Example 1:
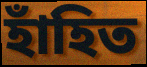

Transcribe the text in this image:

হাঁহিত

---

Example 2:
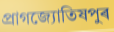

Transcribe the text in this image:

প্ৰাগজ্যোতিষপুৰ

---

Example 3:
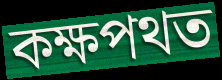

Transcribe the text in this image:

কক্ষপথত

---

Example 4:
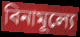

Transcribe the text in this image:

বিনামূল্যে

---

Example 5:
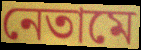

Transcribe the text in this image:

নেতামে